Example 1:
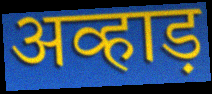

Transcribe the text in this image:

अव्हाड़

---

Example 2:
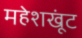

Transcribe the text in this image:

महेशखूंट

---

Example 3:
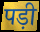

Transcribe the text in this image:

पड़ी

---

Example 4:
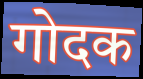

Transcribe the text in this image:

गोदक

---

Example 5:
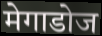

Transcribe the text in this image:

मेगाडोज